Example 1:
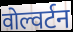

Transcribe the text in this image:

वोल्वर्टन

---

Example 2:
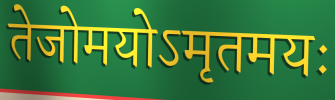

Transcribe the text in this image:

तेजोमयोऽमृतमयः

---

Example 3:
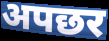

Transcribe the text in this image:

अपछर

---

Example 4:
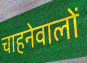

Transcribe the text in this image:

चाहनेवालों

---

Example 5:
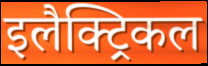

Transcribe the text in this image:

इलैक्ट्रिकल